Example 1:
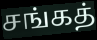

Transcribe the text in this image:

சங்கத்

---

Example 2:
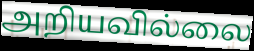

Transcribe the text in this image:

அறியவில்லை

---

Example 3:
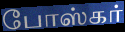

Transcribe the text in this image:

போஸ்கர்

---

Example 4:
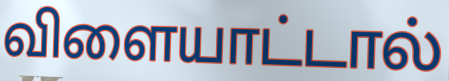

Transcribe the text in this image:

விளையாட்டால்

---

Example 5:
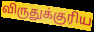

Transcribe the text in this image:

விருதுக்குரிய